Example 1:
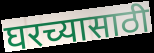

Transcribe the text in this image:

घरच्यासाठी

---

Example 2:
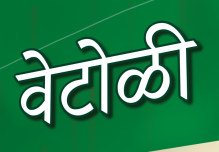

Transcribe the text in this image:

वेटोळी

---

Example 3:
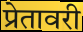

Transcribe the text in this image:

प्रेतावरी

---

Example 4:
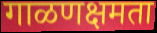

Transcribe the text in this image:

गाळणक्षमता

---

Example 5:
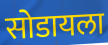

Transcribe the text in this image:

सोडायला